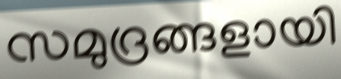
സമുദ്രങ്ങളായി